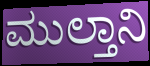
ಮುಲ್ತಾನಿ